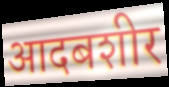
आदबशीर